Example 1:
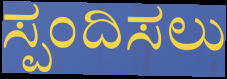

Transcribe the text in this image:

ಸ್ಪಂದಿಸಲು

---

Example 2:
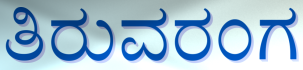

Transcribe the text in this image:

ತಿರುವರಂಗ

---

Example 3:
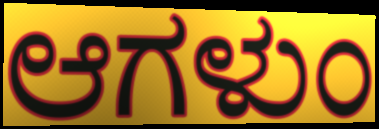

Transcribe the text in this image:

ಆಗಳುಂ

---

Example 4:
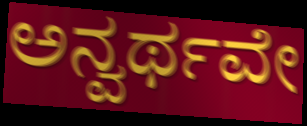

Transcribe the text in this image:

ಅನ್ವರ್ಥವೇ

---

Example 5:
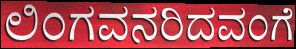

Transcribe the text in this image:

ಲಿಂಗವನರಿದವಂಗೆ